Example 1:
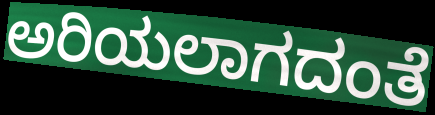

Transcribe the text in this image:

ಅರಿಯಲಾಗದಂತೆ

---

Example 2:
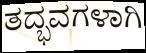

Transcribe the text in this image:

ತದ್ಭವಗಳಾಗಿ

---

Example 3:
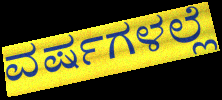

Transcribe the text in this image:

ವರ್ಷಗಳಲ್ಲೆ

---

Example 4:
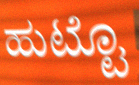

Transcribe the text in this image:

ಹುಟ್ಟೊ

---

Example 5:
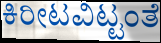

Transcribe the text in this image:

ಕಿರೀಟವಿಟ್ಟಂತೆ